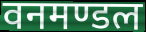
वनमण्डल